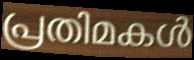
പ്രതിമകൾ